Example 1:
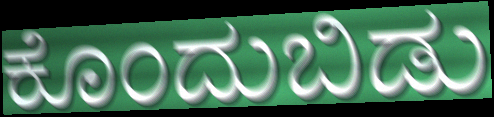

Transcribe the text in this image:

ಕೊಂದುಬಿಡು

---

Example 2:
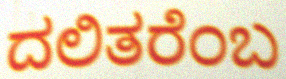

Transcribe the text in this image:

ದಲಿತರೆಂಬ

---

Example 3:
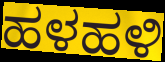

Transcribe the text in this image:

ಹಳಹಳಿ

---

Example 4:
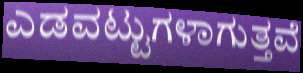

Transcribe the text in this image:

ಎಡವಟ್ಟುಗಳಾಗುತ್ತವೆ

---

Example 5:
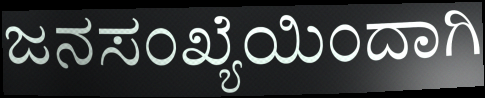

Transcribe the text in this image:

ಜನಸಂಖ್ಯೆಯಿಂದಾಗಿ